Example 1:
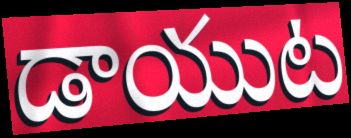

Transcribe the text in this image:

డాయుట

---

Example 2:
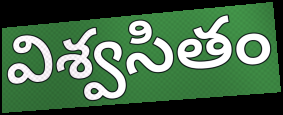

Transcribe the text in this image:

విశ్వసితం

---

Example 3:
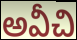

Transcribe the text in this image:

అవీచి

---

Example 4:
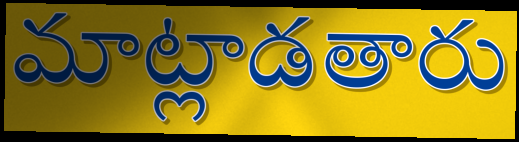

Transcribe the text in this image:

మాట్లాడతారు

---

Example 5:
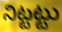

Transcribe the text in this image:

నిట్టట్టు